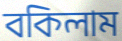
বকিলাম